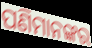
ପଣିମାନଙ୍କର